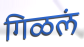
गिळलं